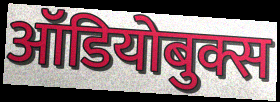
ऑडियोबुक्स